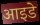
आइडे